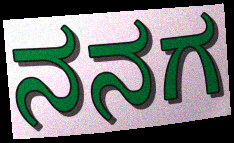
ನನಗ